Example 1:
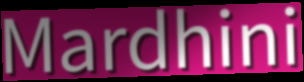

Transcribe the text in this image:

Mardhini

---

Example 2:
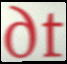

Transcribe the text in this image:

dt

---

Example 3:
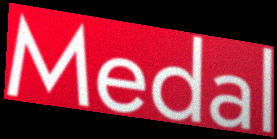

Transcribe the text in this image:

Medal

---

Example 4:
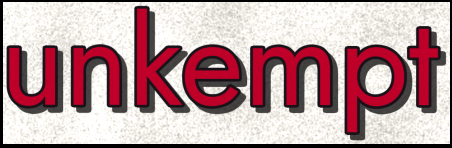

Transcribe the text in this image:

unkempt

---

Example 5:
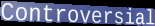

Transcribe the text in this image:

Controversial